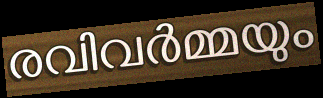
രവിവർമ്മയും